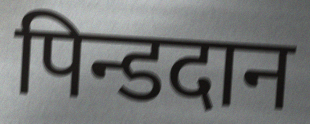
पिन्डदान